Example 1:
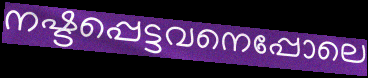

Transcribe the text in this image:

നഷ്ടപ്പെട്ടവനെപ്പോലെ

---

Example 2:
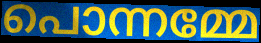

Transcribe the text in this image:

പൊന്നമ്മേ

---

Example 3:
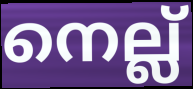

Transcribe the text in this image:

നെല്ല്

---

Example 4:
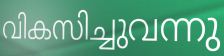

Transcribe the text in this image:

വികസിച്ചുവന്നു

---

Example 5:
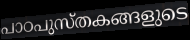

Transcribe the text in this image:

പാഠപുസ്തകങ്ങളുടെ